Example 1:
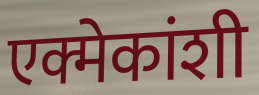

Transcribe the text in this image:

एक्मेकांशी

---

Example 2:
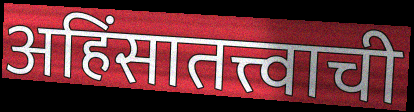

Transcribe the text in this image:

अहिंसातत्त्वाची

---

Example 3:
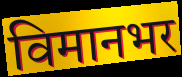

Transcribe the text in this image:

विमानभर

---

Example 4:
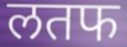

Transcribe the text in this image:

लतफ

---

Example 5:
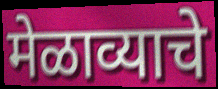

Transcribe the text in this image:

मेळाव्याचे